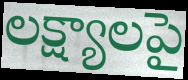
లక్ష్యాలపై